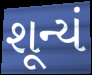
શૂન્યં